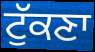
ਟੁੱਕਣਾ